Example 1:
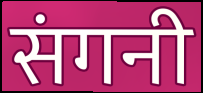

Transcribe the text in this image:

संगनी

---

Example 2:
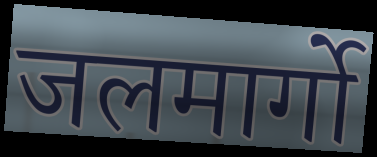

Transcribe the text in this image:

जलमार्गो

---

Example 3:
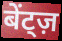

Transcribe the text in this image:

बेंट्ज़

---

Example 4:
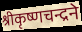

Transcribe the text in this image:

श्रीकृष्णचन्द्रने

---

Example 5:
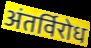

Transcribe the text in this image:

अंतर्विरोध